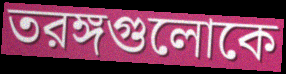
তরঙ্গগুলোকে